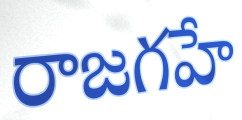
రాజగహే